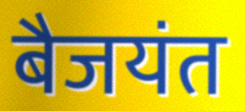
बैजयंत